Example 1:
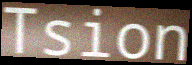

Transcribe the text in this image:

Tsion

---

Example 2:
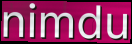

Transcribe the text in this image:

nimdu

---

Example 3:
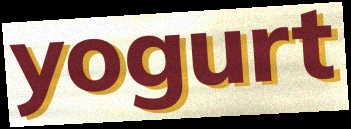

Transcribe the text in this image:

yogurt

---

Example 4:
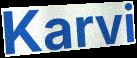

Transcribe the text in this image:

Karvi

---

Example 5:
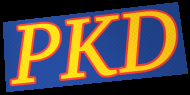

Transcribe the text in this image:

PKD